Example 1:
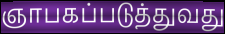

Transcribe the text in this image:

ஞாபகப்படுத்துவது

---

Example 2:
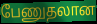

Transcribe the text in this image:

பேணுதலான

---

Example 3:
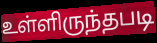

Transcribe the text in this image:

உள்ளிருந்தபடி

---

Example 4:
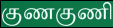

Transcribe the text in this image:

குணகுணி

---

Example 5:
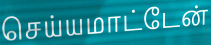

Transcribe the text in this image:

செய்யமாட்டேன்